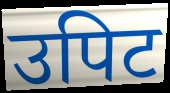
उपिट